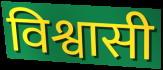
विश्वासी